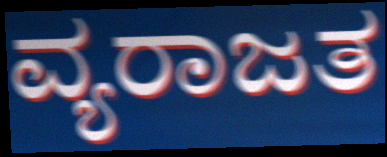
ವ್ಯರಾಜತ